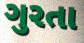
ગુરતા